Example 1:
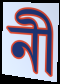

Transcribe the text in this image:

নী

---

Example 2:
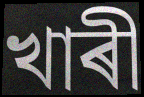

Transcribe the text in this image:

খাৰী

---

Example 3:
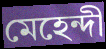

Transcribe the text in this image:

মেহেন্দী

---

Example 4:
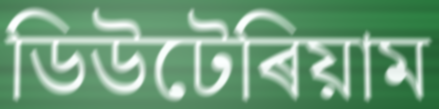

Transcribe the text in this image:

ডিউটেৰিয়াম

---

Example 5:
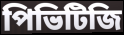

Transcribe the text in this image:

পিভিটিজি